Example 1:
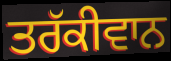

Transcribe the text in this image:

ਤਰੱਕੀਵਾਨ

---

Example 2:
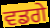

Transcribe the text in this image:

ਵਡਗੇ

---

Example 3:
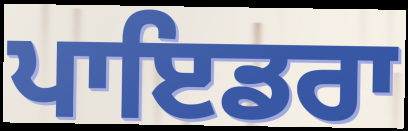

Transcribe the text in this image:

ਪਾਇਡਰਾ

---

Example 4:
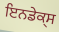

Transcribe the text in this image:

ਇਨਡੇਕ੍ਸ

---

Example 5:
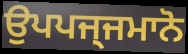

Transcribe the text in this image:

ਉਪਪਜ੍ਜਮਾਨੋ